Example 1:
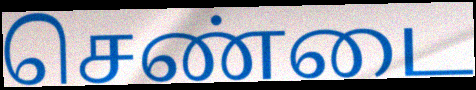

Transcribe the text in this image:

செண்டை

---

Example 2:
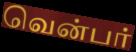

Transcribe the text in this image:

வென்பர்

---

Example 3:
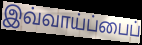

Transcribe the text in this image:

இவ்வாய்ப்பைப்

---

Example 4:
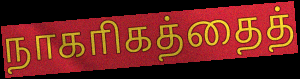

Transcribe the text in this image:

நாகரிகத்தைத்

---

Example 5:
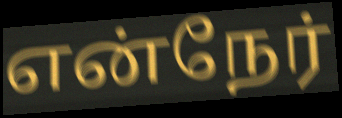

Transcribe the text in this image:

என்நேர்